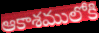
ఆకాశములోకి